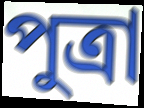
পুত্রা